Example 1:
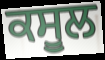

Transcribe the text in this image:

ਕਸੂਲ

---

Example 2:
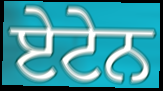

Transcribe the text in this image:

ਏਟੇਨ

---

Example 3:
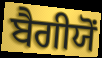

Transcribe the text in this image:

ਬੈਗੀਯੋਂ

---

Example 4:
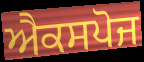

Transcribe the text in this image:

ਐਕਸਪੋਜ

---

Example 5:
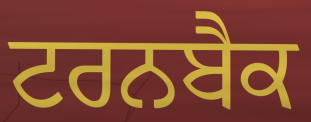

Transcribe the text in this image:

ਟਰਨਬੈਕ